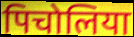
पिचोलिया